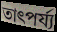
তাৎপৰ্য্য